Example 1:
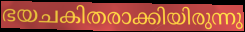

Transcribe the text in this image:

ഭയചകിതരാക്കിയിരുന്നു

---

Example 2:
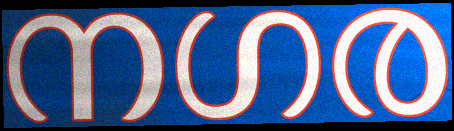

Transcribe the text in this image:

നഗര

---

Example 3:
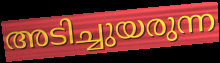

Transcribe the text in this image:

അടിച്ചുയരുന്ന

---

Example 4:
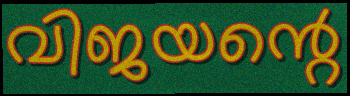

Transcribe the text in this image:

വിജയന്റെ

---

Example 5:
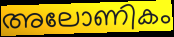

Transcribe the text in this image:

അലോണികം